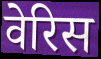
वेरिस